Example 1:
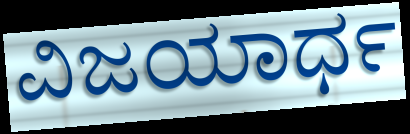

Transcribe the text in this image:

ವಿಜಯಾರ್ಧ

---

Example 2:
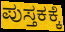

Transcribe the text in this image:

ಪುಸ್ತಕಕ್ಕೆ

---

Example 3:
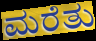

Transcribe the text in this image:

ಮರೆತು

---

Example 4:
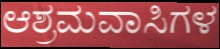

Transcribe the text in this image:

ಆಶ್ರಮವಾಸಿಗಳ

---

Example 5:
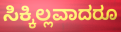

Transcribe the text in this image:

ಸಿಕ್ಕಿಲ್ಲವಾದರೂ